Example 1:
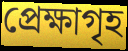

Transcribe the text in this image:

প্ৰেক্ষাগৃহ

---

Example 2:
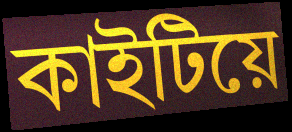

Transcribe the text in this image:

কাইটিয়ে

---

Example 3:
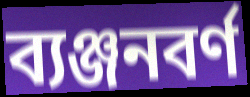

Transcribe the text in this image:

ব্যঞ্জনবৰ্ণ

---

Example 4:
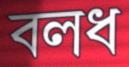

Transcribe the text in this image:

বলধ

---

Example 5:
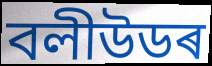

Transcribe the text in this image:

বলীউডৰ